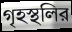
গৃহস্থলির